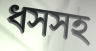
ধসসহ